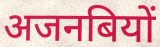
अजनबियों